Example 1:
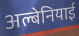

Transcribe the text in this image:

अल्बेनियाई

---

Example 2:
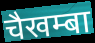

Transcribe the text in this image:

चैखम्बा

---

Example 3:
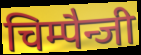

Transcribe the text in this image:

चिम्पैन्जी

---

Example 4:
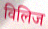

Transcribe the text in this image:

विलिज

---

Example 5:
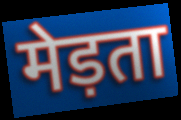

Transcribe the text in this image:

मेड़ता